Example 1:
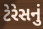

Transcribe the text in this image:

ટેરેસનું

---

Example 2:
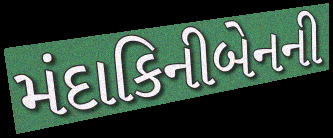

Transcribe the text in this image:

મંદાકિનીબેનની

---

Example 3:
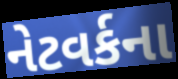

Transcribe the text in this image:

નેટવર્કના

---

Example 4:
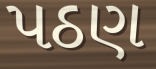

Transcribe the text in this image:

પઠણ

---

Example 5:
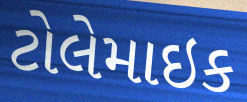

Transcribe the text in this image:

ટોલેમાઇક